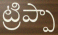
ట్రిప్పా